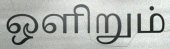
ஒளிறும்